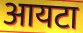
आयटा